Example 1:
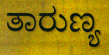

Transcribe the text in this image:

ತಾರುಣ್ಯ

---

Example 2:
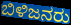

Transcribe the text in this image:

ಬಿಳಿಜನರು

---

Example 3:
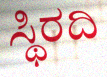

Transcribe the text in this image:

ಸ್ಥಿರದಿ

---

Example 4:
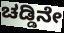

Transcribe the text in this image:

ಚಡ್ಡಿನೇ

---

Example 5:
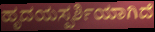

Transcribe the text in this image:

ಹೃದಯಸ್ಪರ್ಶಿಯಾಗಿದೆ